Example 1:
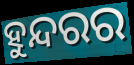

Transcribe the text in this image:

ହୁନ୍ଦରର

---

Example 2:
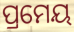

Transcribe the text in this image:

ପ୍ରମେୟ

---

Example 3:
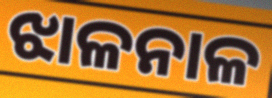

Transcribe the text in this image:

ଝାଳନାଳ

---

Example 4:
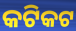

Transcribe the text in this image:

କଟିକଟ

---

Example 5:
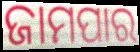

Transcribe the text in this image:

ଜାମପାର